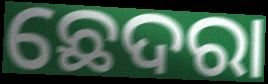
ଛେଦରା